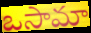
ఒసామా